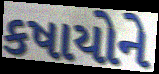
કષાયોને